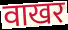
वाखर